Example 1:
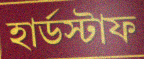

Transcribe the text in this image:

হার্ডস্টাফ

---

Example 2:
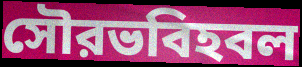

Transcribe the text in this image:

সৌরভবিহবল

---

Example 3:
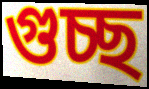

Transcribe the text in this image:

গুচ্ছ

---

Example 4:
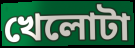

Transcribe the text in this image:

খেলোটা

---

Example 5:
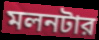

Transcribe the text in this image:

মলনটার